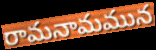
రామనామమున